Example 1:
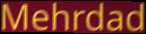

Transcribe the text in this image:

Mehrdad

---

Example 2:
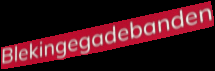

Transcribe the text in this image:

Blekingegadebanden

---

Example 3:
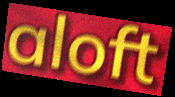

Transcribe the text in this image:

aloft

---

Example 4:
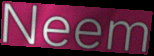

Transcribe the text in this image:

Neem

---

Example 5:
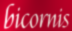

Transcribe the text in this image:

bicornis